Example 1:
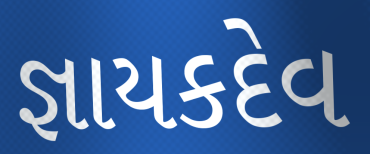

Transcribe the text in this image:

જ્ઞાયકદેવ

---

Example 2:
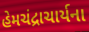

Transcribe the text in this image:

હેમચંદ્રાચાર્યના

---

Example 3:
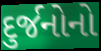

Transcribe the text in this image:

દુર્જનોનો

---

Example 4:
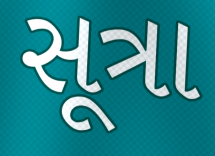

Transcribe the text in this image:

સૂત્રા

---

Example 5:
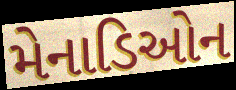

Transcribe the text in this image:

મેનાડિઓન